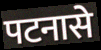
पटनासे